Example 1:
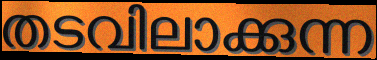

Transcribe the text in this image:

തടവിലാക്കുന്ന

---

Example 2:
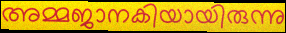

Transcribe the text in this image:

അമ്മജാനകിയായിരുന്നു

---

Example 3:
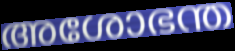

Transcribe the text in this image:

അശോഭന്ത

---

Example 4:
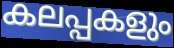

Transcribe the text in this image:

കലപ്പകളും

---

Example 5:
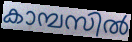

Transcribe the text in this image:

കാമ്പസിൽ